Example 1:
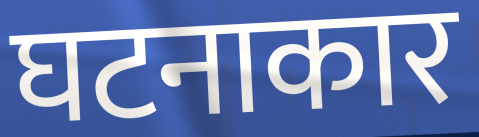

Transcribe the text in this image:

घटनाकार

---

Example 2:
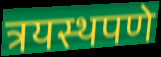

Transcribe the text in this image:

त्रयस्थपणे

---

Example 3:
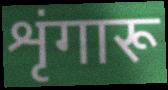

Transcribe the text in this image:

शृंगारू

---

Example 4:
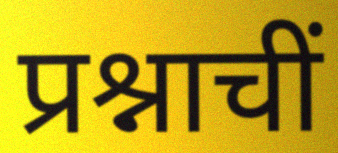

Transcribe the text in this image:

प्रश्नाचीं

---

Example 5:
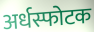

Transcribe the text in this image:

अर्धस्फोटक